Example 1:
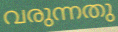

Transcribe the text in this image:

വരുന്നതു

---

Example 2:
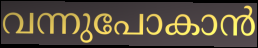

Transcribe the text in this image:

വന്നുപോകാൻ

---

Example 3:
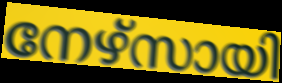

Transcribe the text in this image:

നേഴ്സായി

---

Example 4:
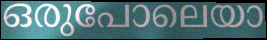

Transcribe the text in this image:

ഒരുപോലെയാ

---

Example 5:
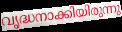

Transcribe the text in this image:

വൃദ്ധനാക്കിയിരുന്നു